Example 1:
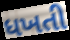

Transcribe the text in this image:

ધખતી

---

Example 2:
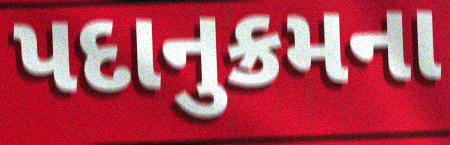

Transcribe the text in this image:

પદાનુક્રમના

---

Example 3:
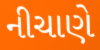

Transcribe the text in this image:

નીચાણે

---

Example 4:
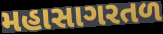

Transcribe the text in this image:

મહાસાગરતળ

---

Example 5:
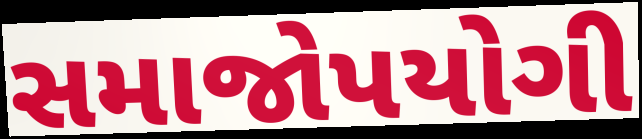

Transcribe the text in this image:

સમાજોપયોગી